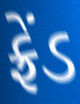
ફ્રેંડ